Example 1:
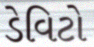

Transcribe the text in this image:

ડેવિટો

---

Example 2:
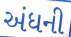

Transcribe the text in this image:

અંધની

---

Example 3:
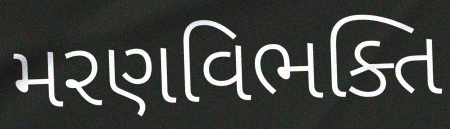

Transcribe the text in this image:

મરણવિભક્તિ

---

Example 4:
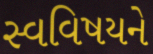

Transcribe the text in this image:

સ્વવિષયને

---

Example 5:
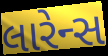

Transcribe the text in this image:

લારેન્સ